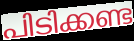
പിടിക്കണ്ട